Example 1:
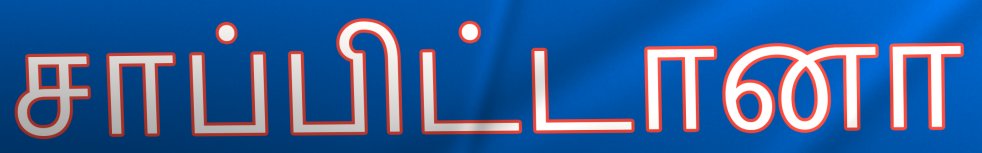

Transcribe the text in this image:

சாப்பிட்டானா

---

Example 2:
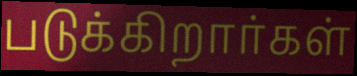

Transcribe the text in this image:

படுக்கிறார்கள்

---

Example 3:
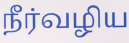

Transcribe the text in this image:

நீர்வழிய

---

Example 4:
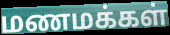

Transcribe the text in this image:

மணமக்கள்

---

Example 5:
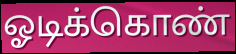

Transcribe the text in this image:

ஓடிக்கொண்